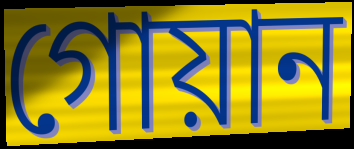
গোয়ান